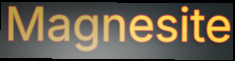
Magnesite